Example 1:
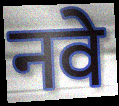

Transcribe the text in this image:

नवे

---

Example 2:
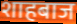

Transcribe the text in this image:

शाहबाज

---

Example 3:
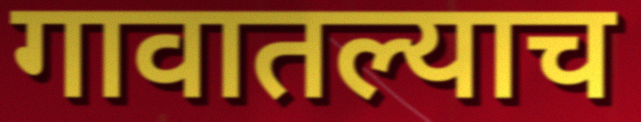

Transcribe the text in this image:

गावातल्याच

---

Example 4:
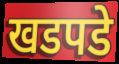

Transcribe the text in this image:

खडपडे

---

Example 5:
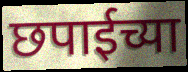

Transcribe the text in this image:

छपाईच्या